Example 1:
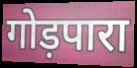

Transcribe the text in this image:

गोड़पारा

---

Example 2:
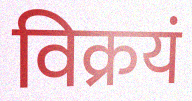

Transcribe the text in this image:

विक्रयं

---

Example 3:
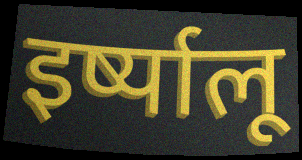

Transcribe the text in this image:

इर्ष्यालू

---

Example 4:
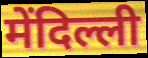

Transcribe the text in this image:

मेंदिल्ली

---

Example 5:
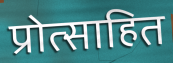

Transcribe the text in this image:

प्रोत्‍साहित